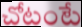
చోటంటే